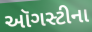
ઑગસ્ટીના